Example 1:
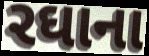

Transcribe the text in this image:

રઘાના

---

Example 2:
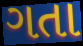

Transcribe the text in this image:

ગતા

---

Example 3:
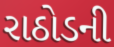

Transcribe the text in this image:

રાઠોડની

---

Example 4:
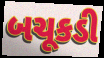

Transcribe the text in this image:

બચૂકડી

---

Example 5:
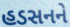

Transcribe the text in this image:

હડસનને